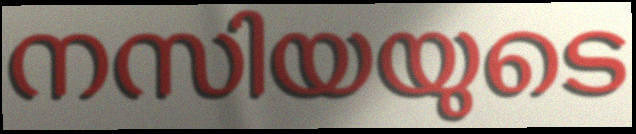
നസിയയുടെ